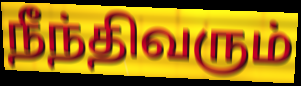
நீந்திவரும்